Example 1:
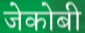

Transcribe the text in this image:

जेकोबी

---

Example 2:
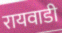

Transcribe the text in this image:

रायवाडी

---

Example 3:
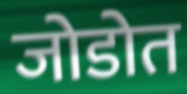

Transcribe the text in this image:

जोडोत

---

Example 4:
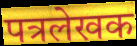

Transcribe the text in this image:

पत्रलेखक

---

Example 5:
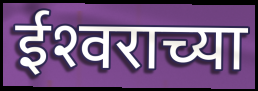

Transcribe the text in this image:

ईश्वराच्या